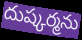
దుష్కర్మను